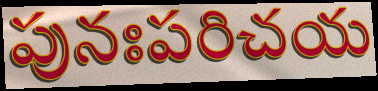
పునఃపరిచయ